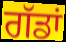
ਗੱਡਾਂ